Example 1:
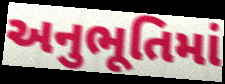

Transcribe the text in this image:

અનુભૂતિમાં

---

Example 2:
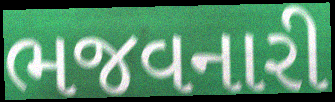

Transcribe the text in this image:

ભજવનારી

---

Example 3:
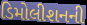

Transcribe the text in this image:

ડિમોલીશનની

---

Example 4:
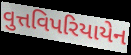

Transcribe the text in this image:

વુત્તવિપરિયાયેન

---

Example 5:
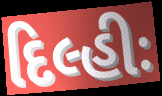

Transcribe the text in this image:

દિલ્હીઃ